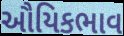
ઔયિકભાવ